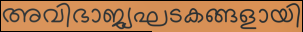
അവിഭാജ്യഘടകങ്ങളായി